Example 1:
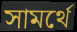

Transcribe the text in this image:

সামর্থে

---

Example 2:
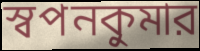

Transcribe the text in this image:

স্বপনকুমার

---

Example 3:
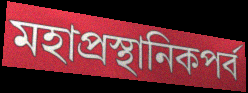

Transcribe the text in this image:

মহাপ্রস্থানিকপর্ব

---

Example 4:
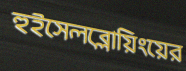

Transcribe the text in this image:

হুইসেলব্লোয়িংয়ের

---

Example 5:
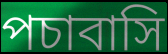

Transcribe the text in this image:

পচাবাসি